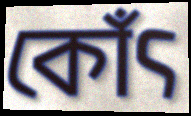
কোঁৎ